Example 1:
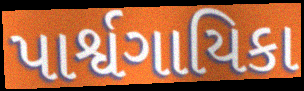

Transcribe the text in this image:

પાર્શ્વગાયિકા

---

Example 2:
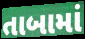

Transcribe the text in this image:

તાબામાં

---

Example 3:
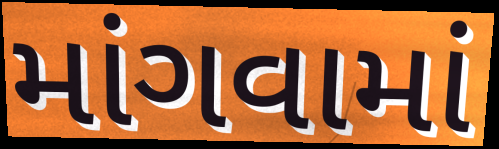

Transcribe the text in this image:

માંગવામાં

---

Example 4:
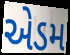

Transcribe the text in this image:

એડમ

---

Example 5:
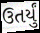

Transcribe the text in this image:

ઉતર્યું